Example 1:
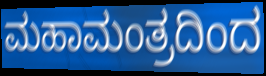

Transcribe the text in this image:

ಮಹಾಮಂತ್ರದಿಂದ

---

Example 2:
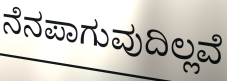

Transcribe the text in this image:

ನೆನಪಾಗುವುದಿಲ್ಲವೆ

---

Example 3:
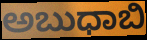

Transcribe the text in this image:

ಅಬುಧಾಬಿ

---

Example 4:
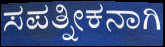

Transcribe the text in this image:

ಸಪತ್ನೀಕನಾಗಿ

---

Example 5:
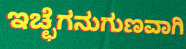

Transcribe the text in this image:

ಇಚ್ಛೆಗನುಗುಣವಾಗಿ